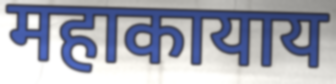
महाकायाय